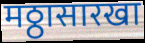
मठ्ठासारखा